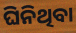
ଘିନିଥିବା